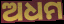
ଅଧମ